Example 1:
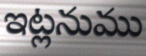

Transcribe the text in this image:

ఇట్లనుము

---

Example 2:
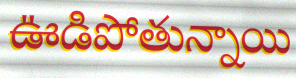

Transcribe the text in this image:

ఊడిపోతున్నాయి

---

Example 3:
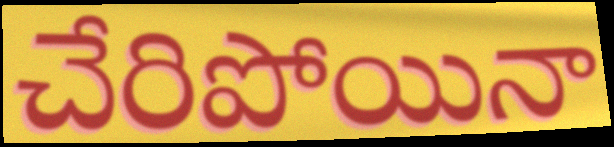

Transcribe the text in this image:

చేరిపోయినా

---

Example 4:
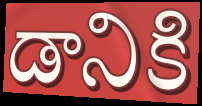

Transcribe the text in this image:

డానికి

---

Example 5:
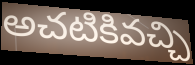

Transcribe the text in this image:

అచటికివచ్చి